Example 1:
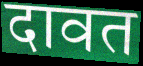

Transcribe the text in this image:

दावत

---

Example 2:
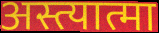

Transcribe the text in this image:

अस्त्यात्मा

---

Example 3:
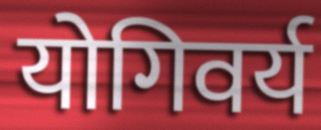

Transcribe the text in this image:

योगिवर्य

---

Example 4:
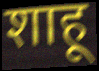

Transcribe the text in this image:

शाहू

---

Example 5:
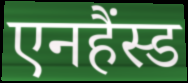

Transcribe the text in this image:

एनहैंस्ड